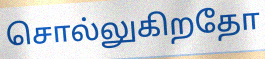
சொல்லுகிறதோ